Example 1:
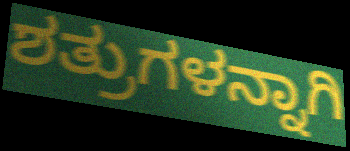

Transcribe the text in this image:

ಶತ್ರುಗಳನ್ನಾಗಿ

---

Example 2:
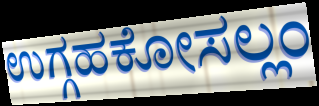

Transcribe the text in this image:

ಉಗ್ಗಹಕೋಸಲ್ಲಂ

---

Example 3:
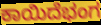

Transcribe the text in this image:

ಕಾಯಿದೆಭಂಗ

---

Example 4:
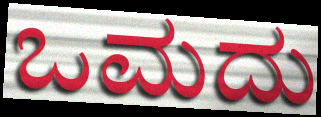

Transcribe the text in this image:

ಒಮದು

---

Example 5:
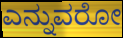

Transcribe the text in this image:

ಎನ್ನುವರೋ